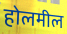
होलमील